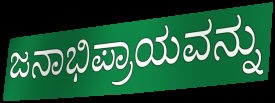
ಜನಾಭಿಪ್ರಾಯವನ್ನು